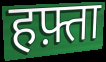
हफ़्ता